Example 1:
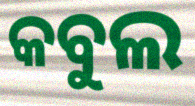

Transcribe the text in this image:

କବୁଲ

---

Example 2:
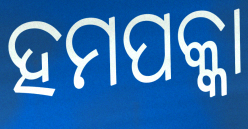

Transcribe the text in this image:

ହମପକ୍କା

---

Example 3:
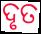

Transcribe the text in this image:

ଦୃତ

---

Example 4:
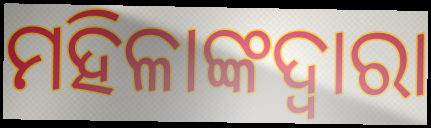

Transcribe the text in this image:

ମହିଳାଙ୍କଦ୍ୱାରା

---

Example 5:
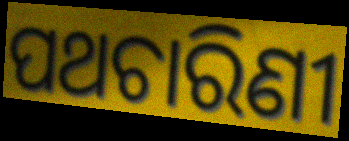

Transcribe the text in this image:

ପଥଚାରିଣୀ